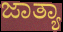
ಜಾತ್ಯಾ